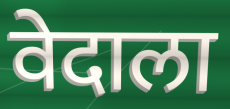
वेदाला